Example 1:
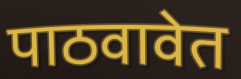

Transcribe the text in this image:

पाठवावेत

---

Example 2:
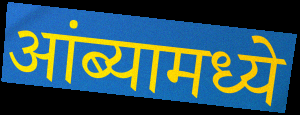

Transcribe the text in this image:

आंब्यामध्ये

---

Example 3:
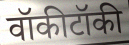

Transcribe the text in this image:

वॉकीटॉकी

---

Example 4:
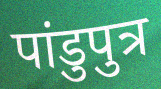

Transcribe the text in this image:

पांडुपुत्र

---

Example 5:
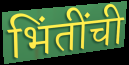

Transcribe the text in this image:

भिंतींची